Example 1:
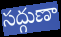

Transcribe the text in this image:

సద్గుణా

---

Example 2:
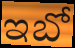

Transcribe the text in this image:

ఇబో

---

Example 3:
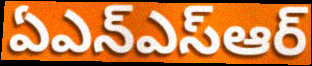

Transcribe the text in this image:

ఏఎన్ఎస్ఆర్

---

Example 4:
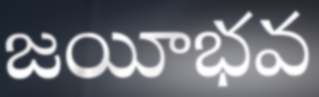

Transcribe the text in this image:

జయీభవ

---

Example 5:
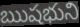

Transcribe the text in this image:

ఋషభుని